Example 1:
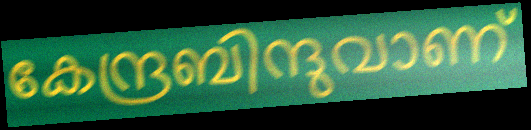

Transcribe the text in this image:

കേന്ദ്രബിന്ദുവാണ്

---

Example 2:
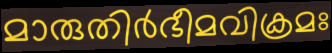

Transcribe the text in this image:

മാരുതിർഭീമവിക്രമഃ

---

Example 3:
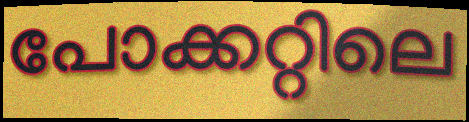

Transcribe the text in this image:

പോക്കറ്റിലെ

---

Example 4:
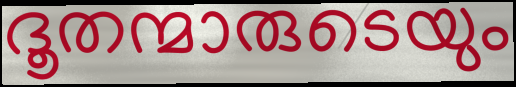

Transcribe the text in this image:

ദൂതന്മാരുടെയും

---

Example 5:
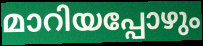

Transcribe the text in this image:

മാറിയപ്പോഴും